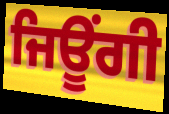
ਜਿਊਂਗੀ